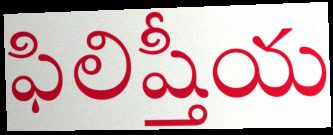
ఫిలిష్తీయ